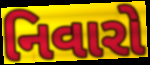
નિવારો